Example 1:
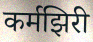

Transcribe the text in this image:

कर्मझिरी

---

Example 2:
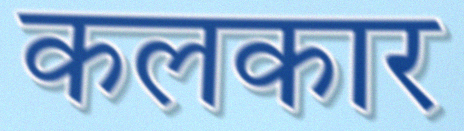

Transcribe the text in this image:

कलकार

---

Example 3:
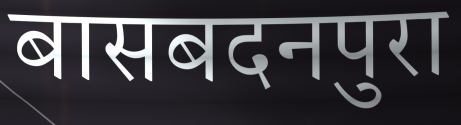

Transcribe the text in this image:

बासबदनपुरा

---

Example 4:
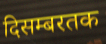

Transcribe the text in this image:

दिसम्बरतक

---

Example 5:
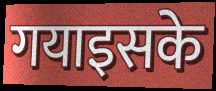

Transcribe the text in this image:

गयाइसके